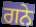
ਗਨੇ